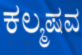
ಕಲ್ಮಷವ